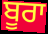
ਬੂਰਾ